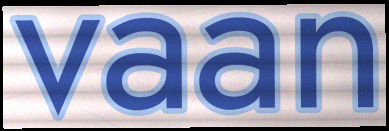
vaan